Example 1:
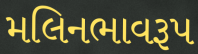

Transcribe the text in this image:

મલિનભાવરૂપ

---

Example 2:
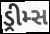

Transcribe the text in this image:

ડ્રીમ્સ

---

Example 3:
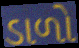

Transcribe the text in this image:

ડાળો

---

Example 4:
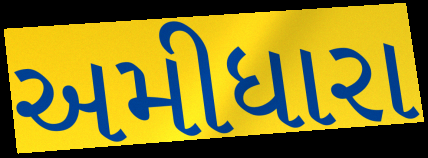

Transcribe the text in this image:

અમીધારા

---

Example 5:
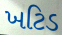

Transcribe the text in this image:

ખટિડ